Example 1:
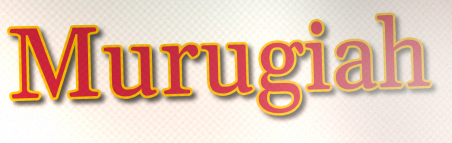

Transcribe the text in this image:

Murugiah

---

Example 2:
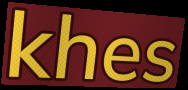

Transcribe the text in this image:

khes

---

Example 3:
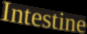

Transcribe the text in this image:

Intestine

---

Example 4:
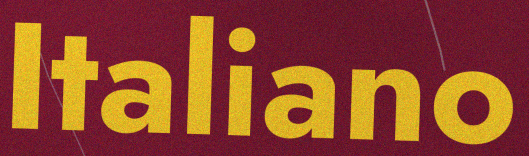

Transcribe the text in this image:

Italiano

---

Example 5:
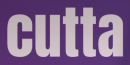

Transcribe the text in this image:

cutta